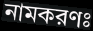
নামকরণঃ